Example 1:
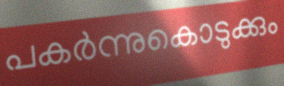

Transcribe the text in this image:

പകർന്നുകൊടുക്കും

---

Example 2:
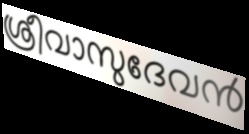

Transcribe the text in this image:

ശ്രീവാസുദേവൻ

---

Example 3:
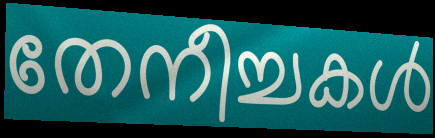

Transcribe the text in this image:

തേനീച്ചകൾ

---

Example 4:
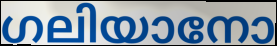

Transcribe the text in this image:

ഗലിയാനോ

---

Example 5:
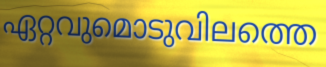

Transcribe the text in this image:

ഏറ്റവുമൊടുവിലത്തെ